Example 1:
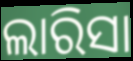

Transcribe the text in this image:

ଲାରିସା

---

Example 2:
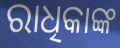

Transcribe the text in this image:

ରାଧିକାଙ୍କ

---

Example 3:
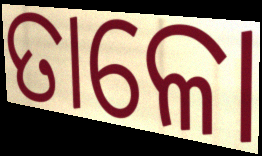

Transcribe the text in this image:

ତାଳୋ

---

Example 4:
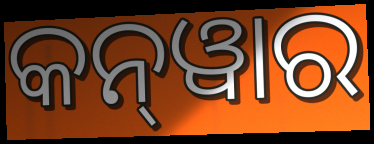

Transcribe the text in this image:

କନ୍‍ୱାର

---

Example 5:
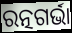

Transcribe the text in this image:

ରତ୍ନଗର୍ଭା